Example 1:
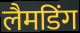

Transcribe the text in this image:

लैमडिंग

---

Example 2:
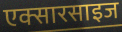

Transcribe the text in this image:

एक्सारसाइज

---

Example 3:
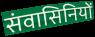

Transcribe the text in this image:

संवासिनियों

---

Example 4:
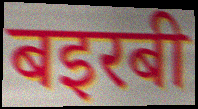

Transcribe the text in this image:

बइरबी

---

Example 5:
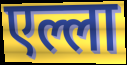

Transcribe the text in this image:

एल्ला